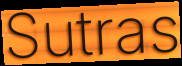
Sutras